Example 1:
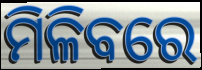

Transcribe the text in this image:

ମିଳିବରେ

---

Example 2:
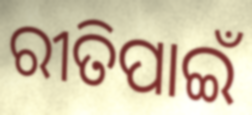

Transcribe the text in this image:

ରୀତିପାଇଁ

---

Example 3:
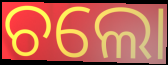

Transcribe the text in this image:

ଚଲୋ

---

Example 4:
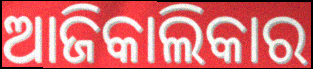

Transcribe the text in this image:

ଆଜିକାଲିକାର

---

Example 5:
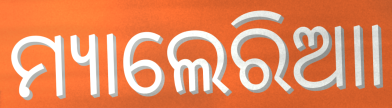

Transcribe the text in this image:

ମ୍ୟାଲେରିଆା